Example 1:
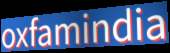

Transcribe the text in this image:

oxfamindia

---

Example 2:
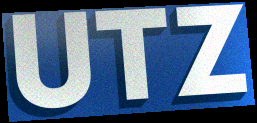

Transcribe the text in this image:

UTZ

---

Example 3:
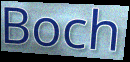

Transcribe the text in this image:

Boch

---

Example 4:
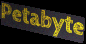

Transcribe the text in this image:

Petabyte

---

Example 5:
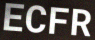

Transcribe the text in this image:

ECFR